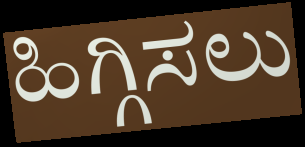
ಹಿಗ್ಗಿಸಲು